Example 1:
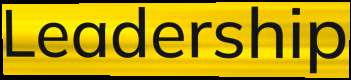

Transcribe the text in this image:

Leadership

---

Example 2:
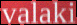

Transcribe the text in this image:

valaki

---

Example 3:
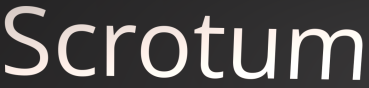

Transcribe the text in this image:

Scrotum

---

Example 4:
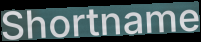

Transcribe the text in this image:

Shortname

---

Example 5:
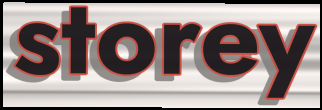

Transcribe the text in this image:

storey